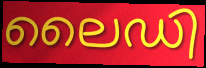
ലൈഡി